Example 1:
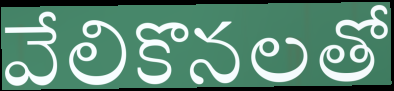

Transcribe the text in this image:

వేలికొనలతో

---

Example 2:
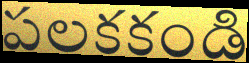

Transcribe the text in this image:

పలకకండి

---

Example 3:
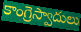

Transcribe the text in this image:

కాంగ్రెస్వాదులు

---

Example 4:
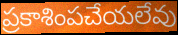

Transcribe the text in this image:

ప్రకాశింపచేయలేవు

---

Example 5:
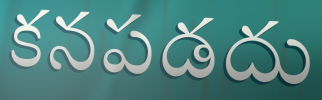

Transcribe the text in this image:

కనపడదు